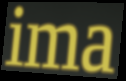
ima